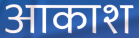
आकाश